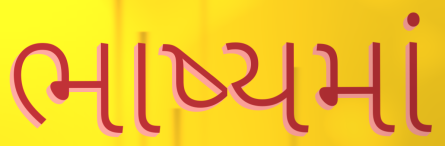
ભાષ્યમાં